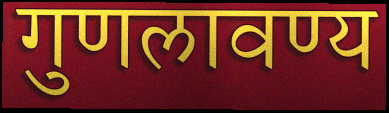
गुणलावण्य